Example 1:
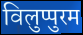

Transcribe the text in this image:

विलुप्पुरम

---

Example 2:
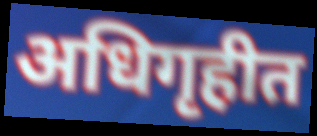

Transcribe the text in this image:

अधिगृहीत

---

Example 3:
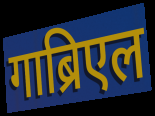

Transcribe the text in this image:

गाब्रिएल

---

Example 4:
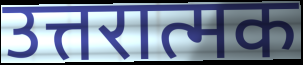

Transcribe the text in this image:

उत्तरात्मक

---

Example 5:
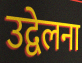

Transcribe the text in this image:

उद्वेलना